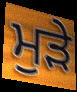
ਮੁੜੇ